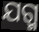
ଯଗ୍ମ